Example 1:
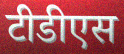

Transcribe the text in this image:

टीडीएस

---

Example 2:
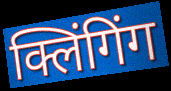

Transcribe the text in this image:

क्लिंगिंग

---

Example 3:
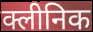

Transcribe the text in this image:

क्लीनिक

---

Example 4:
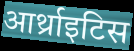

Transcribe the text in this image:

आर्थ्राइटिस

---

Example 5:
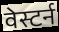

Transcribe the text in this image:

वेस्टर्न